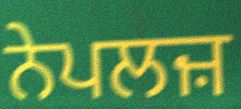
ਨੇਪਲਜ਼